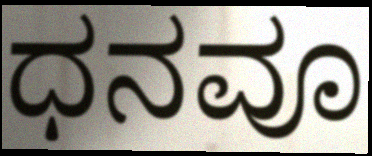
ಧನವೂ